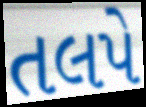
તલપે